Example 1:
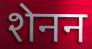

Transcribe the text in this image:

शेनन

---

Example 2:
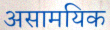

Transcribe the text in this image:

असामयिक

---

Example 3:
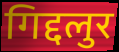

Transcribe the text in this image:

गिद्दलुर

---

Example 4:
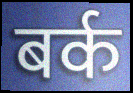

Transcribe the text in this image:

बर्क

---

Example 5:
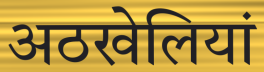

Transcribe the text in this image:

अठखेलियां